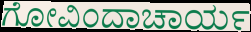
ಗೋವಿಂದಾಚಾರ್ಯ